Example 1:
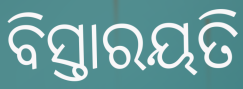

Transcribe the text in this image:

ବିସ୍ତାରୟତି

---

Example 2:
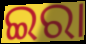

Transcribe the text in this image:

ଇରା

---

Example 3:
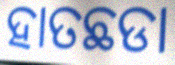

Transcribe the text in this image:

ହାତଛଡା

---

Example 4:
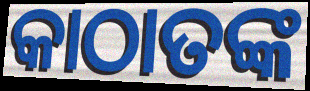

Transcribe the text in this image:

କାଠାତଙ୍କ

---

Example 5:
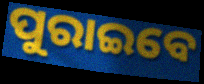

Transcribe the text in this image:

ପୁରାଇବେ